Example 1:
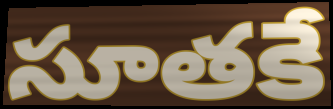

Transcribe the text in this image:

సూతకే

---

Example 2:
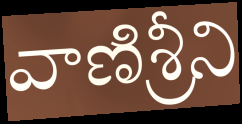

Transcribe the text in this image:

వాణిశ్రీని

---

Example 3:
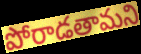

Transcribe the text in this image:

పోరాడతామని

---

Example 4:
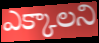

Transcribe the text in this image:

ఎక్కాలని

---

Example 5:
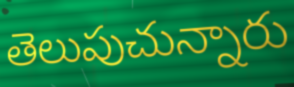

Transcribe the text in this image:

తెలుపుచున్నారు